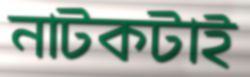
নাটকটাই